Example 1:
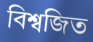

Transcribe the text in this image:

বিশ্বজিত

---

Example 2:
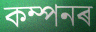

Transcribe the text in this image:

কম্পনৰ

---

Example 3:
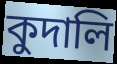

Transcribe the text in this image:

কুদালি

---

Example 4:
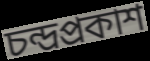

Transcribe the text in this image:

চন্দ্ৰপ্ৰকাশ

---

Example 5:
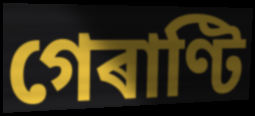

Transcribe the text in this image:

গেৰাণ্টি